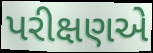
પરીક્ષણએ